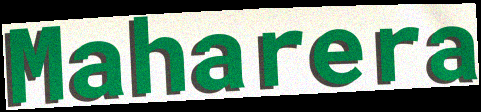
Maharera